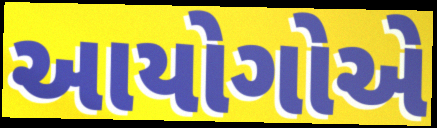
આયોગોએ